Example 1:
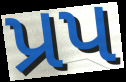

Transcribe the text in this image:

પ્રપ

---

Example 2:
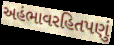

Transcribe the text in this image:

અહંભાવરહિતપણું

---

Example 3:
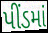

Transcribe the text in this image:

પીંડમાં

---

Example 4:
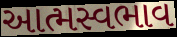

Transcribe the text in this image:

આત્મસ્વભાવ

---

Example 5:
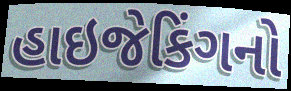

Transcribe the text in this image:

હાઇજેકિંગનો